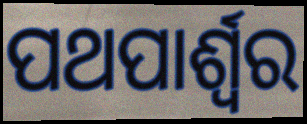
ପଥପାର୍ଶ୍ଵର